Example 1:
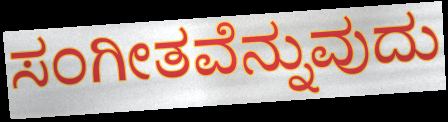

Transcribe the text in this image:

ಸಂಗೀತವೆನ್ನುವುದು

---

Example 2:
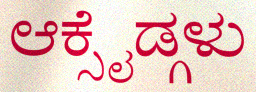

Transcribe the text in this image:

ಆಕ್ಸೈಡ್ಗಳು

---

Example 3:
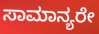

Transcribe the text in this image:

ಸಾಮಾನ್ಯರೇ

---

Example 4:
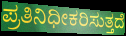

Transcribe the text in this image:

ಪ್ರತಿನಿಧೀಕರಿಸುತ್ತದೆ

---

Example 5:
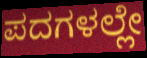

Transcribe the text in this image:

ಪದಗಳಲ್ಲೇ